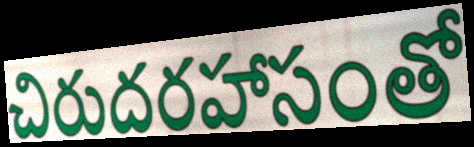
చిరుదరహాసంతో